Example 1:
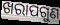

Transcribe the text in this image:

ଖରାପଗୁଣ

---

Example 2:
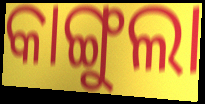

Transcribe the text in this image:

କାଙ୍ଗୁଲା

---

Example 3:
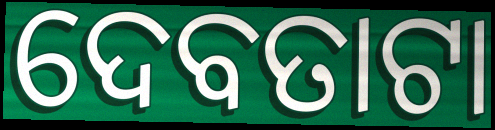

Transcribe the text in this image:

ଦେବତାଟା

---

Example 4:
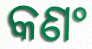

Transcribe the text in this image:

କଣଂ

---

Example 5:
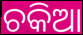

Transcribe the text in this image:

ଚକିଆ